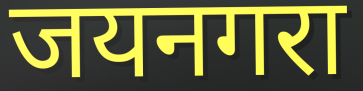
जयनगरा